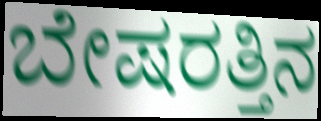
ಬೇಷರತ್ತಿನ